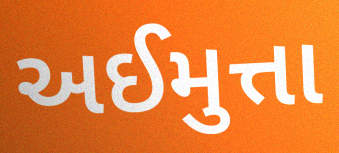
અઈમુત્તા